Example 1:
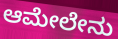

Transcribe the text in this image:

ಆಮೇಲೇನು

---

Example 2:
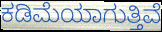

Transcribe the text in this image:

ಕಡಿಮೆಯಾಗುತ್ತಿವೆ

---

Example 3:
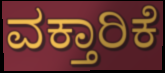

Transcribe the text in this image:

ವಕ್ತಾರಿಕೆ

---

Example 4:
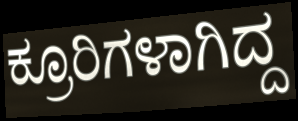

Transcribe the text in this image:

ಕ್ರೂರಿಗಳಾಗಿದ್ದ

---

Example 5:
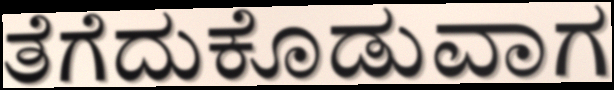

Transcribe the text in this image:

ತೆಗೆದುಕೊಡುವಾಗ